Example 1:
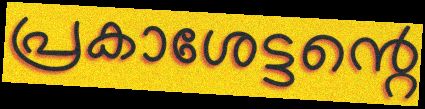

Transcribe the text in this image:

പ്രകാശേട്ടന്റെ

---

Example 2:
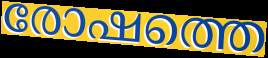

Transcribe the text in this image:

രോഷത്തെ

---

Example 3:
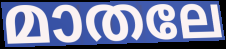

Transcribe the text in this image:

മാതലേ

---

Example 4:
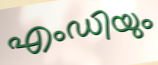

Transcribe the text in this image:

എംഡിയും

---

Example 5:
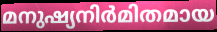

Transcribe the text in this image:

മനുഷ്യനിർമിതമായ